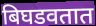
बिघडवतात